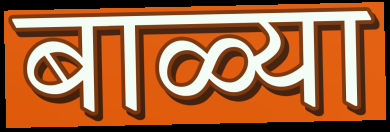
बाळ्या